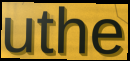
uthe